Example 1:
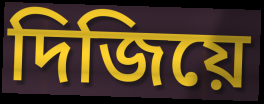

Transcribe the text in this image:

দিজিয়ে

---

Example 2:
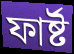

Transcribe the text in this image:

ফার্ষ্ট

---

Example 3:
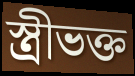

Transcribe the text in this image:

স্ত্রীভক্ত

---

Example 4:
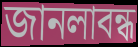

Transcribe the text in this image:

জানলাবন্ধ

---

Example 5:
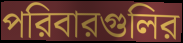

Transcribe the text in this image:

পরিবারগুলির